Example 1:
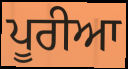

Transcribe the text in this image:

ਪੂਰੀਆ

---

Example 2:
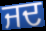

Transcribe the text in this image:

ਜਦ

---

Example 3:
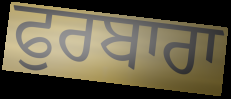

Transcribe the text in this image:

ਫੁਰਬਾਰਾ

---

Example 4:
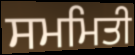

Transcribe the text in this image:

ਸਮਮਿਤੀ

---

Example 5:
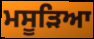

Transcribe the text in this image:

ਮਸੂੜਿਆ